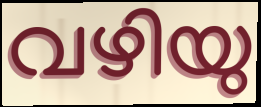
വഴിയു